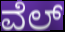
ವೆಲ್